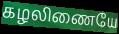
கழலிணையே